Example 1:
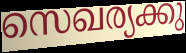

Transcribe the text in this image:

സെഖര്യക്കു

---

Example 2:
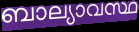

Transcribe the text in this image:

ബാല്യാവസ്ഥ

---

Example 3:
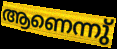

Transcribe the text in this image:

ആണെന്നു്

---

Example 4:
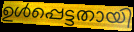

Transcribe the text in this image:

ഉൾപ്പെട്ടതായി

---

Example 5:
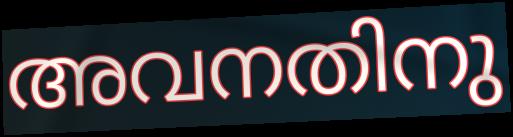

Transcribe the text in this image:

അവനതിനു